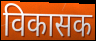
विकासक